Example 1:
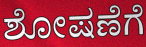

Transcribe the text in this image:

ಶೋಷಣೆಗೆ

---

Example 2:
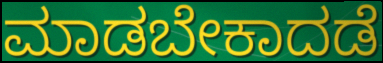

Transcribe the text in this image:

ಮಾಡಬೇಕಾದಡೆ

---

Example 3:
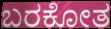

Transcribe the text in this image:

ಬರಕೋತ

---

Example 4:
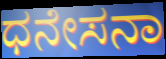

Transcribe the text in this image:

ಧನೇಸನಾ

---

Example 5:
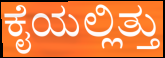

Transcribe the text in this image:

ಕೈಯಲ್ಲಿತ್ತು